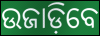
ଉଜାଡ଼ିବେ